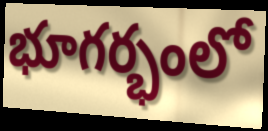
భూగర్భంలో